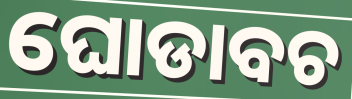
ଘୋଡାବଚ